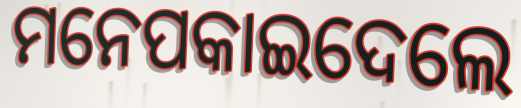
ମନେପକାଇଦେଲେ